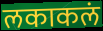
लकाकलं